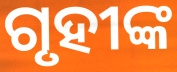
ଗୃହୀଙ୍କ